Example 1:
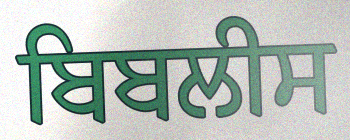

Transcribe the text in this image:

ਬਿਬਲੀਸ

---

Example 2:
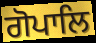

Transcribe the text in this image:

ਗੋਪਾਲਿ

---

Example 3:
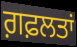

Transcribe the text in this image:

ਗ਼ਫ਼ਲਤਾਂ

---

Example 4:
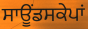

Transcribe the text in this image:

ਸਾਊਂਡਸਕੇਪਾਂ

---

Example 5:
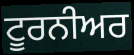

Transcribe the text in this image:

ਟੂਰਨੀਅਰ